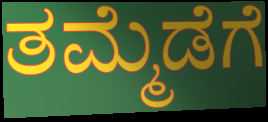
ತಮ್ಮೆಡೆಗೆ